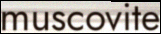
muscovite